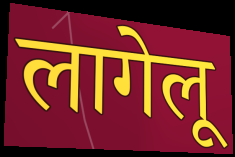
लागेलू